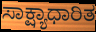
ಸಾಕ್ಷ್ಯಾಧಾರಿತ